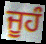
ਜੂਹੰ